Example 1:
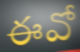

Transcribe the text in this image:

ఈవో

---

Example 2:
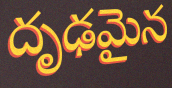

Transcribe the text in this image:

దృఢమైన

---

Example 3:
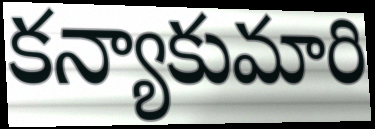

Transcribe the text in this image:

కన్యాకుమారి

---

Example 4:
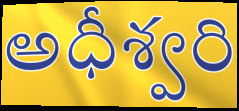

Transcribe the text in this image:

అధీశ్వరి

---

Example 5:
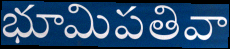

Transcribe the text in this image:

భూమిపతివా